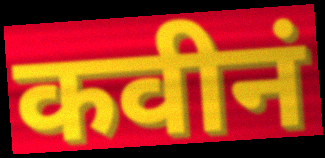
कवीनं